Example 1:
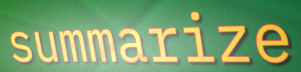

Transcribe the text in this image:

summarize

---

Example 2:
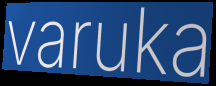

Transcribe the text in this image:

varuka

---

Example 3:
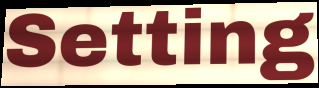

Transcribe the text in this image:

Setting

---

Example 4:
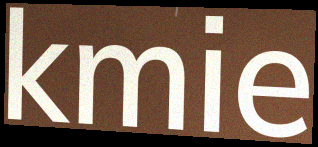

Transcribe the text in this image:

kmie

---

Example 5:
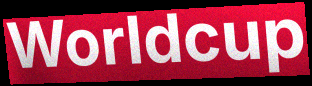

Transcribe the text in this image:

Worldcup